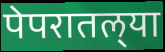
पेपरातल्या